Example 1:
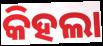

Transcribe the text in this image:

କିହଲା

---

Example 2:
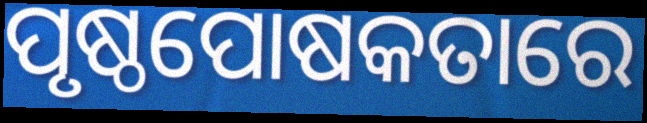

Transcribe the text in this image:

ପୃଷ୍ଠପୋଷକତାରେ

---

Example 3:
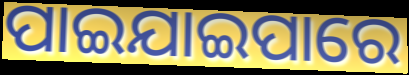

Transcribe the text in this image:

ପାଇଯାଇପାରେ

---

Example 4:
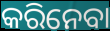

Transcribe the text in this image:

କରିନେବା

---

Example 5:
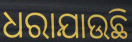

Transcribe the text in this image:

ଧରାଯାଉଛି